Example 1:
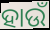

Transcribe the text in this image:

ହାଉଁ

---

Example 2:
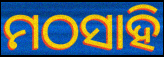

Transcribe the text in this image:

ମଠସାହି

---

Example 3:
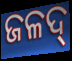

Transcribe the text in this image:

ଜଳଦ୍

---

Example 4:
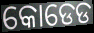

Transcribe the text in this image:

କୋଡେଡ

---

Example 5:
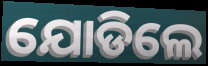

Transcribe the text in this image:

ଯୋଡିଲେ